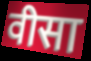
वीसा